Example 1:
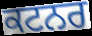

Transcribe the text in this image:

ਕਟਨਰ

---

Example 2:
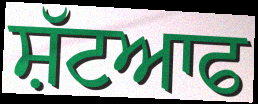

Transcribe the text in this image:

ਸ਼ੱਟਆਫ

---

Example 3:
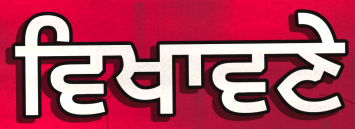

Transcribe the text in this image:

ਵਿਖਾਵਣੇ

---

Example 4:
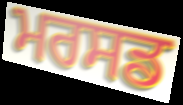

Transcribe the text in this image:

ਮਰਸਡ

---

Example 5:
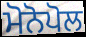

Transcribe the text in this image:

ਮੋਨੋਪੋਲ